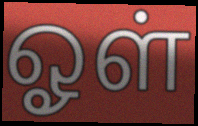
ஓள்